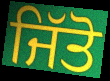
ਜਿੱਤੋ